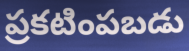
ప్రకటింపబడు